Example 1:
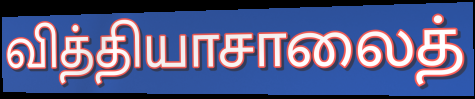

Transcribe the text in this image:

வித்தியாசாலைத்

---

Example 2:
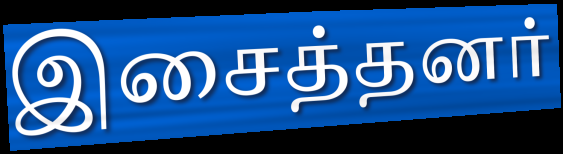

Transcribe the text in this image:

இசைத்தனர்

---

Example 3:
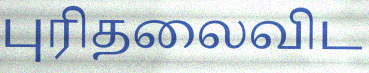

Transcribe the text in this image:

புரிதலைவிட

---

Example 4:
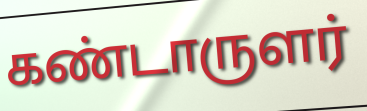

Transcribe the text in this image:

கண்டாருளர்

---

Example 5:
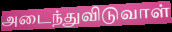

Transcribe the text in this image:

அடைந்துவிடுவாள்